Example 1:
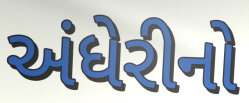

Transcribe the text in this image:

અંધેરીનો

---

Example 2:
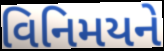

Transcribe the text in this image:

વિનિમયને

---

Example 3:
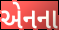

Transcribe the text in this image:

એનના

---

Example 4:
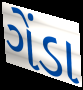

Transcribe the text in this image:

ગેંડા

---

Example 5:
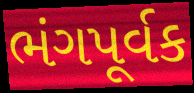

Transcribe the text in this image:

ભંગપૂર્વક